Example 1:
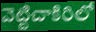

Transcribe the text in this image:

వెట్టిచాకిరిలో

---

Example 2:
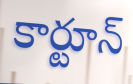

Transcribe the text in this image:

కార్టూన్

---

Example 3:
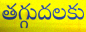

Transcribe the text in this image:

తగ్గుదలకు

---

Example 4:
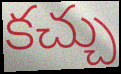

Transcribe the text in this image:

కచ్చు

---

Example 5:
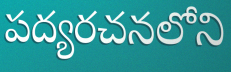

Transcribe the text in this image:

పద్యరచనలోని